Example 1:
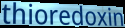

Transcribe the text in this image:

thioredoxin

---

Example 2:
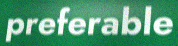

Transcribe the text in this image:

preferable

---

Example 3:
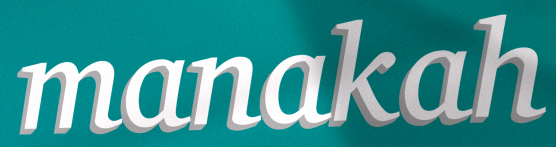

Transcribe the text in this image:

manakah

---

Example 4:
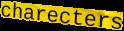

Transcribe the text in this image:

charecters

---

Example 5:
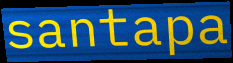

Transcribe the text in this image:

santapa